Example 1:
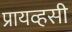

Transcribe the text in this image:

प्रायव्हसी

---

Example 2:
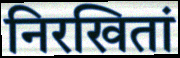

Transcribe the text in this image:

निरखितां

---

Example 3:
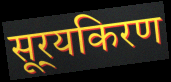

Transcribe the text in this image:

सूर्यकिरण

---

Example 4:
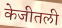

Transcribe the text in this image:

केजीतली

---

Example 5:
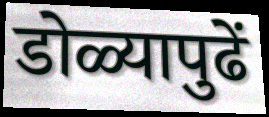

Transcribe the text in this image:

डोळ्यापुढें